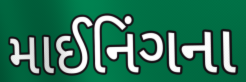
માઈનિંગના